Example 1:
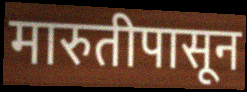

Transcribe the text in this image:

मारुतीपासून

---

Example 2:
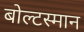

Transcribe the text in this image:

बोल्टस्मान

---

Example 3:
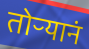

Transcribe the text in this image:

तोऱ्यानं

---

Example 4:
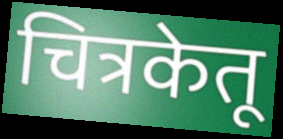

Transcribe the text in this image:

चित्रकेतू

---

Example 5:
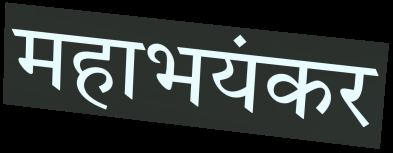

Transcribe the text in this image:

महाभयंकर